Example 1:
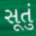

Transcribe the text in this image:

સૂતું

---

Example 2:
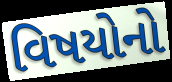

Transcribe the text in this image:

વિષયોનો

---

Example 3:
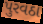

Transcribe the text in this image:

પુરવઠા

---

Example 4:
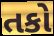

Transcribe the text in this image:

તકો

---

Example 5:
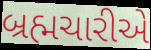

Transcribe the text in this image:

બ્રહ્મચારીએ